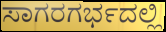
ಸಾಗರಗರ್ಭದಲ್ಲಿ